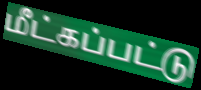
மீட்கப்பட்டு